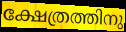
ക്ഷേത്രത്തിനു